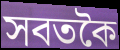
সবতকৈ